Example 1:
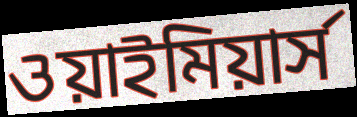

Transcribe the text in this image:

ওয়াইমিয়ার্স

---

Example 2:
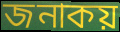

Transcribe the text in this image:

জনাকয়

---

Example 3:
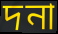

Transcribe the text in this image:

দনা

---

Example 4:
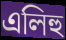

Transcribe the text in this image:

এলিহু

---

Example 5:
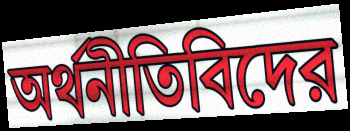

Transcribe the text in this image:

অর্থনীতিবিদের